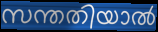
സന്തതിയാൽ